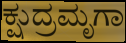
ಕ್ಷುದ್ರಮೃಗಾ